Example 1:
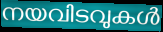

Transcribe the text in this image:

നയവിടവുകൾ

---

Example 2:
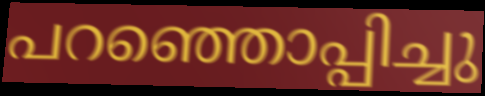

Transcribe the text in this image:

പറഞ്ഞൊപ്പിച്ചു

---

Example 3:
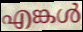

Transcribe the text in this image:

എങ്കൾ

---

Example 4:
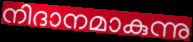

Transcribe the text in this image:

നിദാനമാകുന്നു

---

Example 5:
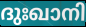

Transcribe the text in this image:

ദുഃഖാനി